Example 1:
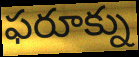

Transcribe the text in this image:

ఫరూక్ను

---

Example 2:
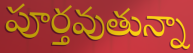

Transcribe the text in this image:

పూర్తవుతున్నా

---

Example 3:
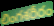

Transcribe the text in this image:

లింగశరీరం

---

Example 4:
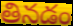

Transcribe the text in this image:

తినడం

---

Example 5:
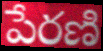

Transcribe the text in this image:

పేరణి